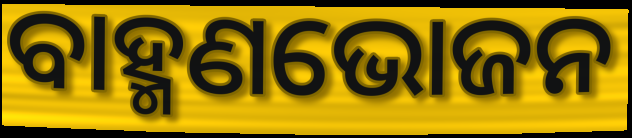
ବାହ୍ମଣଭୋଜନ